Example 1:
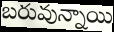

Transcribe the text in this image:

బరువున్నాయి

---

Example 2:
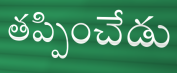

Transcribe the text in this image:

తప్పించేడు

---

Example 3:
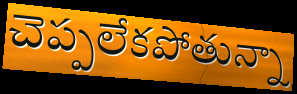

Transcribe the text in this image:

చెప్పలేకపోతున్నా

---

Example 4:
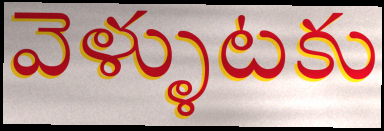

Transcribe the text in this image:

వెళ్ళుటకు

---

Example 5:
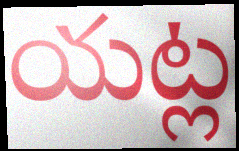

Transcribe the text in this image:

యట్ల